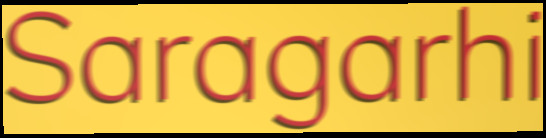
Saragarhi